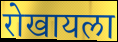
रोखायला